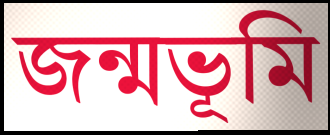
জন্মভূমি